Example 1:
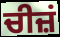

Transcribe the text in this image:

ਚੀਜ਼ਂ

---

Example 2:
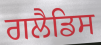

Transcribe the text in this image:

ਗਲੈਡਿਸ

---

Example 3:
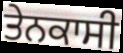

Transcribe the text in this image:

ਤੇਨਕਾਸੀ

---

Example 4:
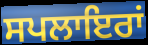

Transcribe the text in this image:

ਸਪਲਾਇਰਾਂ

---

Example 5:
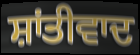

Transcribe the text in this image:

ਸ਼ਾਂਤੀਵਾਦ